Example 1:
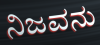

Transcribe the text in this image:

ನಿಜವನು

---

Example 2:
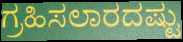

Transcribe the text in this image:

ಗ್ರಹಿಸಲಾರದಷ್ಟು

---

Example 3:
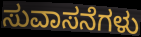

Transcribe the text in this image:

ಸುವಾಸನೆಗಳು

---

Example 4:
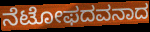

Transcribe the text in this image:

ನೆಟೋಫದವನಾದ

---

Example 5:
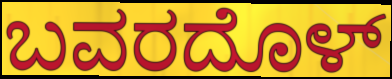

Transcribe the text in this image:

ಬವರದೊಳ್